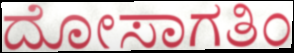
ದೋಸಾಗತಿಂ